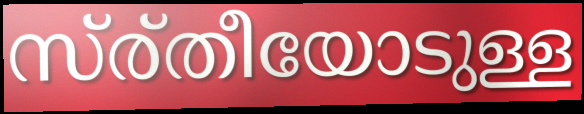
സ്ര്തീയോടുള്ള